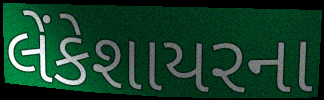
લેંકેશાયરના